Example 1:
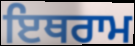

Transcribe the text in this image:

ਇਥਰਾਮ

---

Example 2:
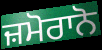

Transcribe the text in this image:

ਜ਼ਮੋਰਾਨੋ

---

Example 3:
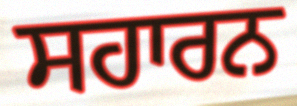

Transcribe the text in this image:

ਸਹਾਰਨ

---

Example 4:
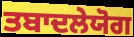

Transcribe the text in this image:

ਤਬਾਦਲੇਯੋਗ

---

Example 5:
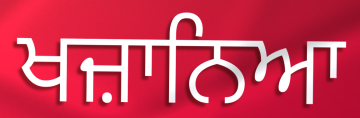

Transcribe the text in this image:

ਖਜ਼ਾਨਿਆ